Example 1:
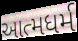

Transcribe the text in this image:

આત્મધર્મ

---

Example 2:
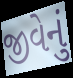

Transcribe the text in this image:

જીવેનું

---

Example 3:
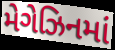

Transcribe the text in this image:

મેગેઝિનમાં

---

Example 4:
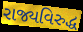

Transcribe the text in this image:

રાજ્યવિરુદ્ધ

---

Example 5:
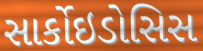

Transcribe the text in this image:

સાર્કોઇડોસિસ